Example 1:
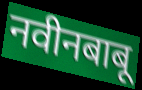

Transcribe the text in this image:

नवीनबाबू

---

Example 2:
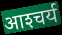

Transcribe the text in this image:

आश्‍चर्य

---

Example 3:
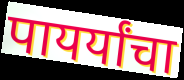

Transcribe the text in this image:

पायर्यांचा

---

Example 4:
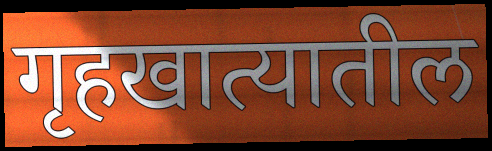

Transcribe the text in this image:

गृहखात्यातील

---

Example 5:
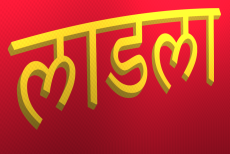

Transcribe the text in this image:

लाडला